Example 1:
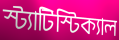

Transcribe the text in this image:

স্ট্যাটিস্টিক্যাল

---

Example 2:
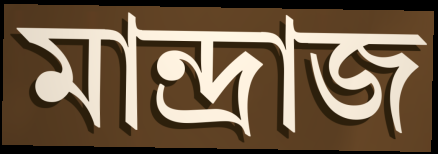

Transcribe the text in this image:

মান্দ্রাজ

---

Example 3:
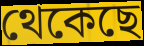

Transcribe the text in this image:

থেকেছে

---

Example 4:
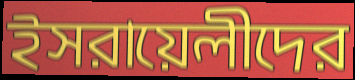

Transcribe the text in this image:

ইসরায়েলীদের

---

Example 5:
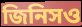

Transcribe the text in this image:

জিনিসও